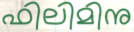
ഫിലിമിനു